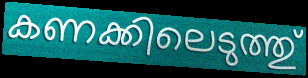
കണക്കിലെടുത്തു്